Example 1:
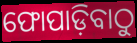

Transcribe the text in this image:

ଫୋପାଡ଼ିବାଠୁ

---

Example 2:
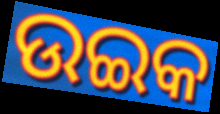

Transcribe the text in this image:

ଉଇକ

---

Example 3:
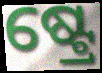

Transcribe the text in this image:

ଷ୍ଟ୍ରେ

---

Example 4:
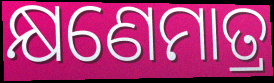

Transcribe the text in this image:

କ୍ଷଣେମାତ୍ର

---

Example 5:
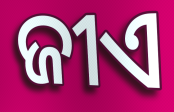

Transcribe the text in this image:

ଜୀଏ